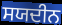
ਸਯਦੀਨ